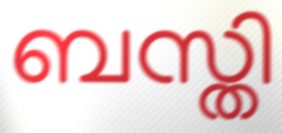
ബസ്തി